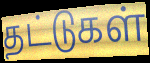
தட்டுகள்